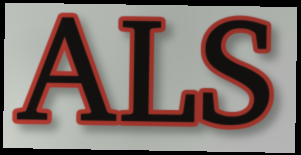
ALS